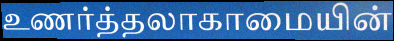
உணர்த்தலாகாமையின்